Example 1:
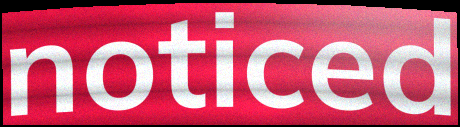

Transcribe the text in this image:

noticed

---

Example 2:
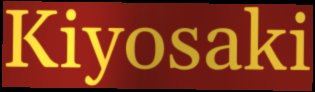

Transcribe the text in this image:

Kiyosaki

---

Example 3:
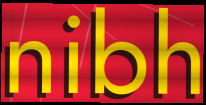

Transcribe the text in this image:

nibh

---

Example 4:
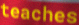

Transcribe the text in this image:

teaches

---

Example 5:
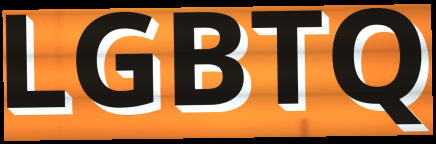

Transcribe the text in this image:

LGBTQ